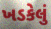
ખડકેલું